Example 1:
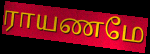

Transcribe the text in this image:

ராயணமே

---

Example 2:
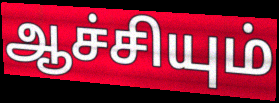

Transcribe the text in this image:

ஆச்சியும்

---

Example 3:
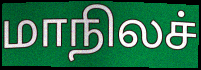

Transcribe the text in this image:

மாநிலச்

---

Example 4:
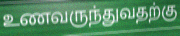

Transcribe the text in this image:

உணவருந்துவதற்கு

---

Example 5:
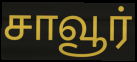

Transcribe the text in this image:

சாவூர்